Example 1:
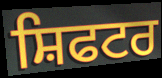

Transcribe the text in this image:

ਸ਼ਿਫਟਰ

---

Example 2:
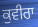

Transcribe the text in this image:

ਕੁਵੀਰਾ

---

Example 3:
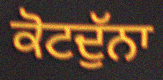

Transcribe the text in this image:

ਕੋਟਦੁੱਨਾ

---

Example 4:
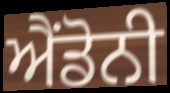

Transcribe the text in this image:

ਐਂਡੋਨੀ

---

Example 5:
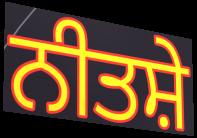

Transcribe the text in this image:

ਨੀਤਸ਼ੇ